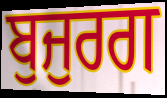
ਬੁਜੁਰਗ